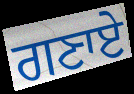
ਗਣਾਏ